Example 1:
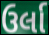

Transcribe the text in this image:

ઉર્લા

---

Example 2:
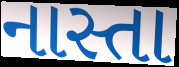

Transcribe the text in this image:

નાસ્તા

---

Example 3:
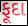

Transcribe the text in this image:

ફૂદા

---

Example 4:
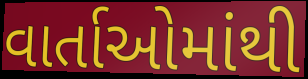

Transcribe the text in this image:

વાર્તાઓમાંથી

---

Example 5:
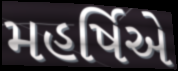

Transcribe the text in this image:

મહર્ષિએ